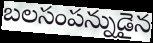
బలసంపన్నుడైన